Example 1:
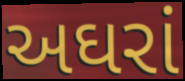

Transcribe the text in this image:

અઘરાં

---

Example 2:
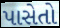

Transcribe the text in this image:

પાસેતો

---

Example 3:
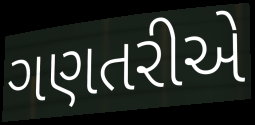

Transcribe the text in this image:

ગણતરીએ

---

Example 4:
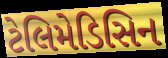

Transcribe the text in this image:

ટેલિમેડિસિન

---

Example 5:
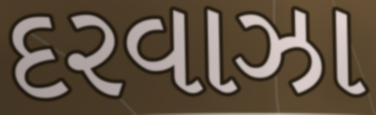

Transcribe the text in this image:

દરવાઝા